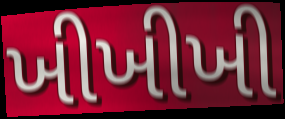
ખીખીખી